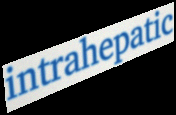
intrahepatic